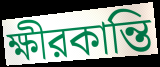
ক্ষীরকান্তি